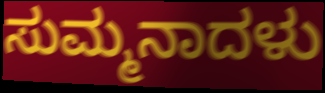
ಸುಮ್ಮನಾದಳು